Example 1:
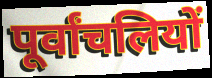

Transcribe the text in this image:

पूर्वांचलियों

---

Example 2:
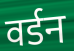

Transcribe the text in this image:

वर्डन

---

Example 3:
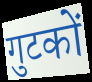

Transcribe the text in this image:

गुटकों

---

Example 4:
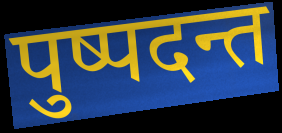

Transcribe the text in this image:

पुष्पदन्त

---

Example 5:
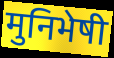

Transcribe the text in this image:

मुनिभेषी